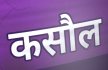
कसौल